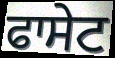
ਫਾਸੇਟ